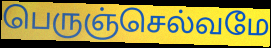
பெருஞ்செல்வமே